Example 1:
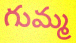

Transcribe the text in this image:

గుమ్మ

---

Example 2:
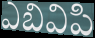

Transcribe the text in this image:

ఎబివిపి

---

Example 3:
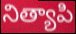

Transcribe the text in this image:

నిత్యాపి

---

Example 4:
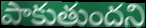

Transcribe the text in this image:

పాకుతుందని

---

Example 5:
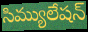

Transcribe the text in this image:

సిమ్యులేషన్